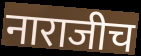
नाराजीच